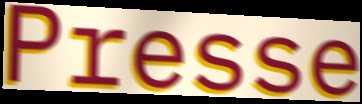
Presse